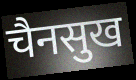
चैनसुख